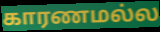
காரணமல்ல